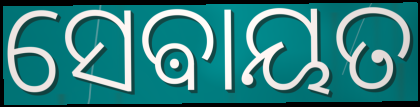
ସେଵାୟତ